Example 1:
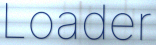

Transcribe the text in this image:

Loader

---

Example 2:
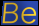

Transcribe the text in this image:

Be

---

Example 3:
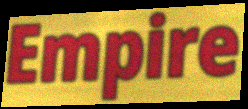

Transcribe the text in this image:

Empire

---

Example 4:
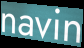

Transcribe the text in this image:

navin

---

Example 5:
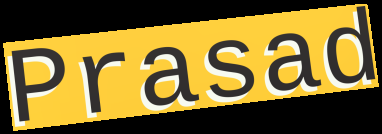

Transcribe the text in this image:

Prasad